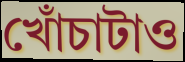
খোঁচাটাও